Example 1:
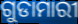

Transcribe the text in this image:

ଗୁଡାମାରୀ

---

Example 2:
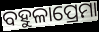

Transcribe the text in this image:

ବହୁଳାପ୍ରେମା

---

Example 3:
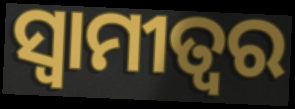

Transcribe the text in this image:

ସ୍ୱାମୀତ୍ୱର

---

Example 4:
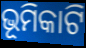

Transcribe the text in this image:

ଭୂମିକାଟି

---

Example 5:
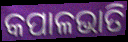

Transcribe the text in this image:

କପାଳଭାତି